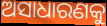
ଅସାଧାରଣକୁ